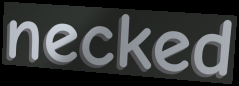
necked